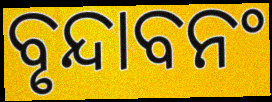
ବୃନ୍ଦାବନଂ